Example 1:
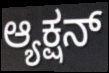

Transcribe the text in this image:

ಆ್ಯಕ್ಷನ್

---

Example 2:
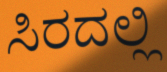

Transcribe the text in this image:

ಸಿರದಲ್ಲಿ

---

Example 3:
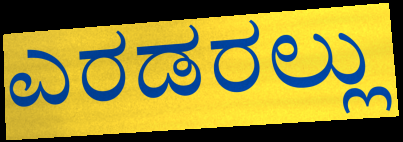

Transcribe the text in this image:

ಎರಡರಲ್ಲು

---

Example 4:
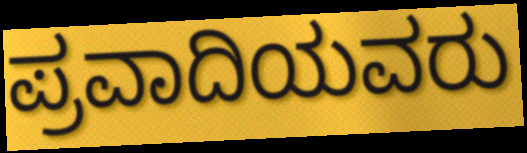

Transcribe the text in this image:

ಪ್ರವಾದಿಯವರು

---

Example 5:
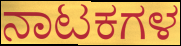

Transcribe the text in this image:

ನಾಟಕಗಳ